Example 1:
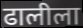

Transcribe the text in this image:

ढालीला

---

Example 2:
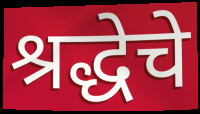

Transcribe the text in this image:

श्रद्धेचे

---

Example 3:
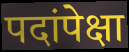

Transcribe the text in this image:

पदांपेक्षा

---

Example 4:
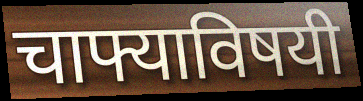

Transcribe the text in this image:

चाफ्याविषयी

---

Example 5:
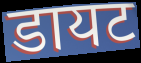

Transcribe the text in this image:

डायट